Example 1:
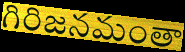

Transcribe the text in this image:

గిరిజనమంతా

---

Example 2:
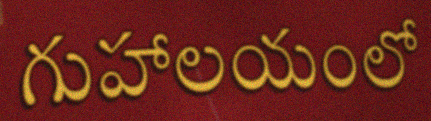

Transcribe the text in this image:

గుహాలయంలో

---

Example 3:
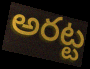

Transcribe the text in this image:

అరట్ట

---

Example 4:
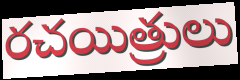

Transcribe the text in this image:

రచయిత్రులు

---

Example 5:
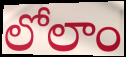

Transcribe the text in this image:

లోలాం